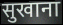
सुखाना